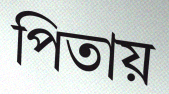
পিতায়